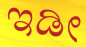
ಇಡೀ